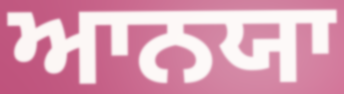
ਆਨਯਾ